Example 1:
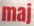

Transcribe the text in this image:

maj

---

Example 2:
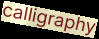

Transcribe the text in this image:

calligraphy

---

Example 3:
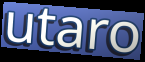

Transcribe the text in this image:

utaro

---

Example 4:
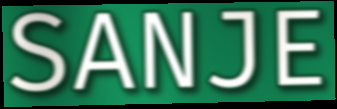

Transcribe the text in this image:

SANJE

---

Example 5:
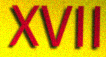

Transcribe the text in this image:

XVII